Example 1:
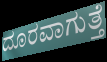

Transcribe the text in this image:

ದೂರವಾಗುತ್ತೆ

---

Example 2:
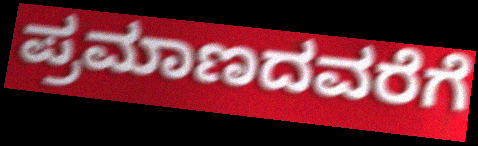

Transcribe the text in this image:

ಪ್ರಮಾಣದವರೆಗೆ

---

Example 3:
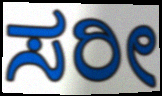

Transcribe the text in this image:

ಸರೀ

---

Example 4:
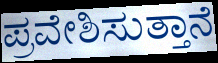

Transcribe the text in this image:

ಪ್ರವೇಶಿಸುತ್ತಾನೆ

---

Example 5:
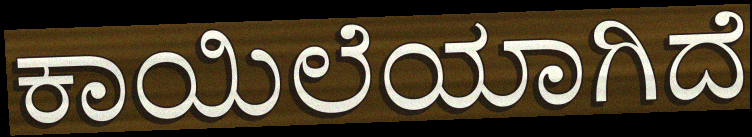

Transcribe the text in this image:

ಕಾಯಿಲೆಯಾಗಿದೆ